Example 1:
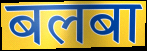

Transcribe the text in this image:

बलबा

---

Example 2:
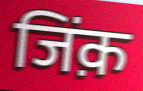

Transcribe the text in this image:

जिंक़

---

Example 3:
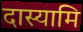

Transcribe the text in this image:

दास्यामि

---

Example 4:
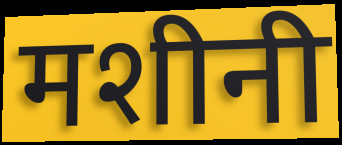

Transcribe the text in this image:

मशीनी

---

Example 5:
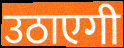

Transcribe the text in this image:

उठाएगी